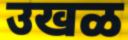
उखळ